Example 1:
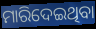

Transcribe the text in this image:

ମାରିଦେଇଥିବା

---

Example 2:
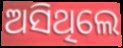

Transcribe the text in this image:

ଅସିଥିଲେ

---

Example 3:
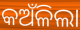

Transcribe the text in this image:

କଅଁଳିଲା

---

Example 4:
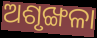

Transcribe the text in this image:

ଅଶୃଙ୍ଖଳା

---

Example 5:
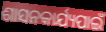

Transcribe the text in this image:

ଶାସନକାର୍ଯ୍ୟପାଇଁ